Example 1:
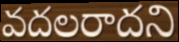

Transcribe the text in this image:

వదలరాదని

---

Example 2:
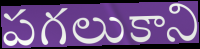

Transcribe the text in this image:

పగలుకాని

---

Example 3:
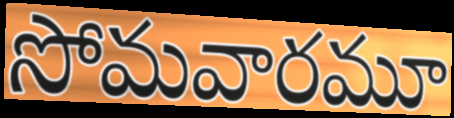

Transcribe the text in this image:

సోమవారమూ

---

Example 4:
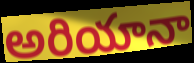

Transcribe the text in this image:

అరియానా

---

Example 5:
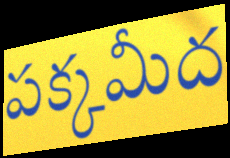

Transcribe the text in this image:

పక్కమీద